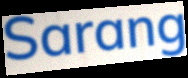
Sarang